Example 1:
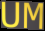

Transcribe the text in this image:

UM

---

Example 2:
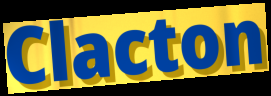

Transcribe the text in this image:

Clacton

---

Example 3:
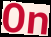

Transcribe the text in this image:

On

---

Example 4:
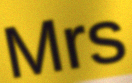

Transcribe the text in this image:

Mrs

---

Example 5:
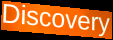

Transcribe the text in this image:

Discovery